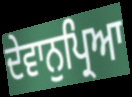
ਦੇਵਾਨੁਪ੍ਰਿਆ